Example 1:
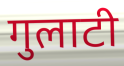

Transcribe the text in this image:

गुलाटी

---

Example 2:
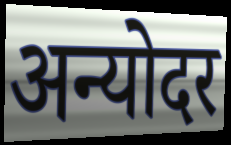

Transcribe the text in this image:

अन्योदर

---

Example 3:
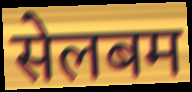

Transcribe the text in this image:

सेलबम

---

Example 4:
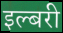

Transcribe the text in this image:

इल्बरी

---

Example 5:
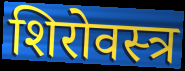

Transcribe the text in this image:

शिरोवस्त्र